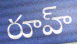
రూహ్